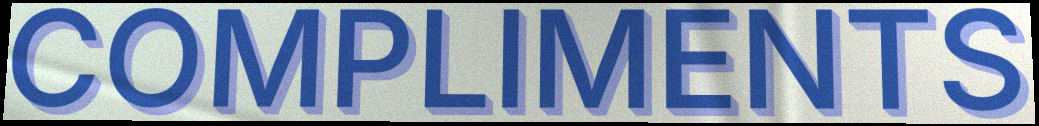
COMPLIMENTS